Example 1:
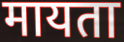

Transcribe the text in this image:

मायता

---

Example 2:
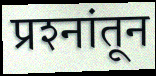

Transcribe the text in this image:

प्रश्नांतून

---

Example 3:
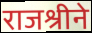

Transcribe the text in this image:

राजश्रीने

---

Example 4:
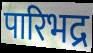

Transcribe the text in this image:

पारिभद्र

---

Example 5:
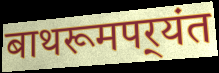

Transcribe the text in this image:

बाथरूमपर्यंत